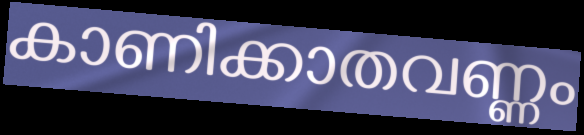
കാണിക്കാതവണ്ണം